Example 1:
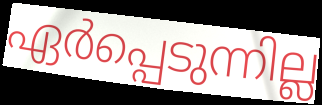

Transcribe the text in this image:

ഏർപ്പെടുന്നില്ല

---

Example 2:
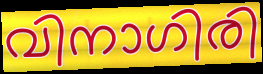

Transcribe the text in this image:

വിനാഗിരി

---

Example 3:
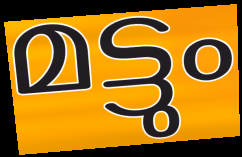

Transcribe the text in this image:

മട്ടും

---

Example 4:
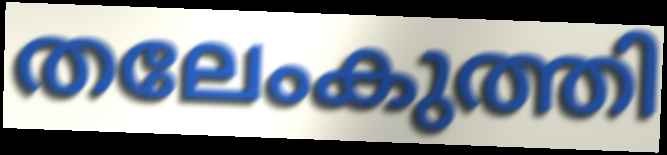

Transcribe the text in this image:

തലേംകുത്തി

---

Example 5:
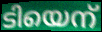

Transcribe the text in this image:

ടിയെന്